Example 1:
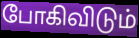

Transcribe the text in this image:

போகிவிடும்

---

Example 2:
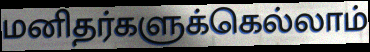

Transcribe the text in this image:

மனிதர்களுக்கெல்லாம்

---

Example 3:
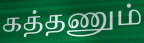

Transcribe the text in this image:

கத்தணும்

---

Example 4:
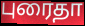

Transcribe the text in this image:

புரைதா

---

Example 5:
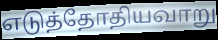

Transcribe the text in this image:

எடுத்தோதியவாறு